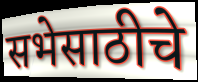
सभेसाठीचे